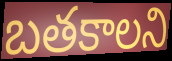
బతకాలని